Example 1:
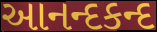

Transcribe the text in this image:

આનન્દકન્દ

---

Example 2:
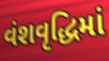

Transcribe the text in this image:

વંશવૃદ્ધિમાં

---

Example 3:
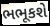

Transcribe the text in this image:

ભભૂકશે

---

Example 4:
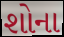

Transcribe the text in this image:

શોના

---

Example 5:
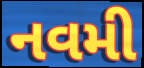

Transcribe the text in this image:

નવમી